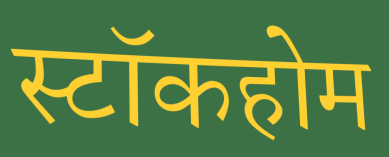
स्टॉकहोम